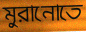
মুরানোতে